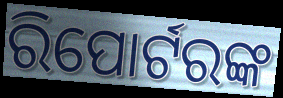
ରିପୋର୍ଟରଙ୍କ